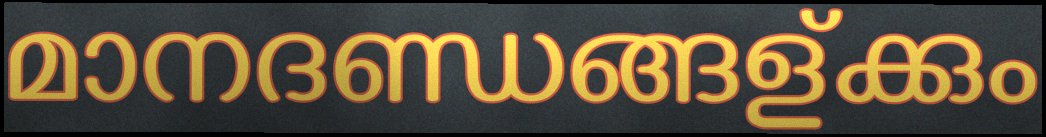
മാനദണ്ഡങ്ങള്ക്കും